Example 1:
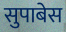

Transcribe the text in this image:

सुपाबेस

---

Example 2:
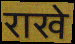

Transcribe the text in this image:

राखे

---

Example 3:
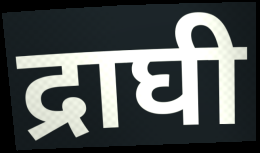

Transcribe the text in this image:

द्राघी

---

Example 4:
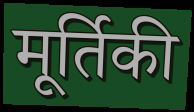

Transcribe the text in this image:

मूर्तिकी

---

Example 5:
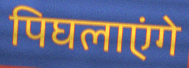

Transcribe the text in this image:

पिघलाएंगे